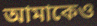
আমাকেও